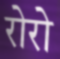
रोरो